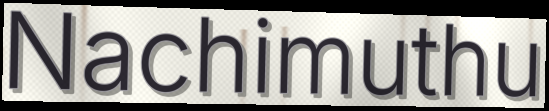
Nachimuthu